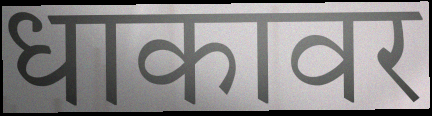
धाकावर